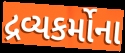
દ્રવ્યકર્મોના